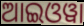
ଆଇଓୱା